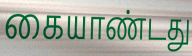
கையாண்டது